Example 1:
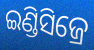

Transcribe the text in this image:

ଇଣ୍ଡିସିଜ୍ରେ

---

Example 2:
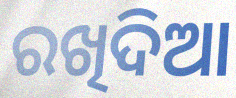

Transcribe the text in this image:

ରଖିଦିଆ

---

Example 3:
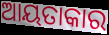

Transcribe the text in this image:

ଆୟତାକାର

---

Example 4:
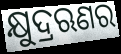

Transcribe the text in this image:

କ୍ଷୁଦ୍ରଋଣର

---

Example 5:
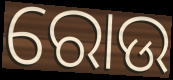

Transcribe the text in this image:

ରୋଉ